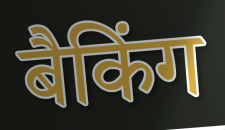
बैकिंग